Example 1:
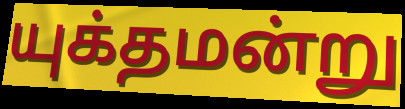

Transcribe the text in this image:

யுக்தமன்று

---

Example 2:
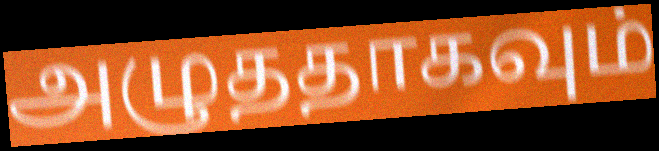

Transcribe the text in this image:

அழுததாகவும்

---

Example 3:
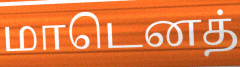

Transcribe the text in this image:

மாடெனத்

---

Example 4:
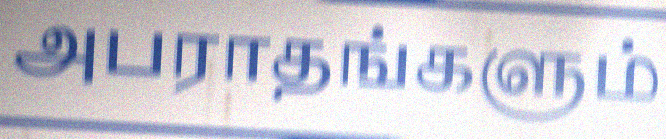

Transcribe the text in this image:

அபராதங்களும்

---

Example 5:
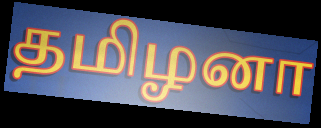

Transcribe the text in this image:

தமிழனா